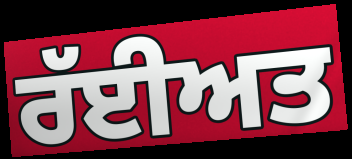
ਰੱਈਅਤ